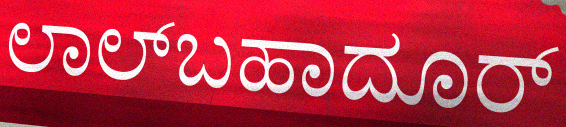
ಲಾಲ್‌ಬಹಾದೂರ್